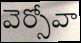
వెర్సోవా